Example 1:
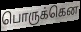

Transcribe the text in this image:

பொருக்கென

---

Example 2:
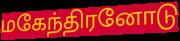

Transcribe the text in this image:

மகேந்திரனோடு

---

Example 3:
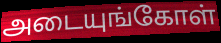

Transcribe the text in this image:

அடையுங்கோள்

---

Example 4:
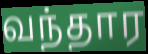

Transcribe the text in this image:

வந்தார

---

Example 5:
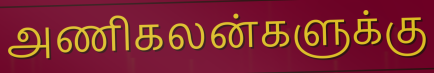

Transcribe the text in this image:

அணிகலன்களுக்கு